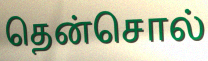
தென்சொல்